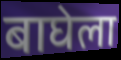
बाघेला